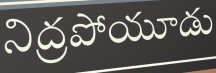
నిద్రపోయూడు